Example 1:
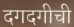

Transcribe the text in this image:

दगदगीची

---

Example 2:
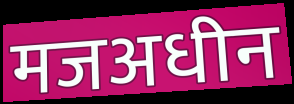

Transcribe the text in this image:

मजअधीन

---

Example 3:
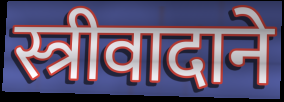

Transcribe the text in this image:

स्त्रीवादाने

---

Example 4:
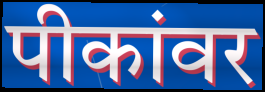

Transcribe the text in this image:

पीकांवर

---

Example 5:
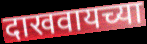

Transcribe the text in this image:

दाखवायच्या